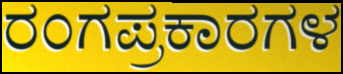
ರಂಗಪ್ರಕಾರಗಳ